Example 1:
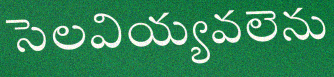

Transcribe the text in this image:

సెలవియ్యవలెను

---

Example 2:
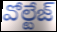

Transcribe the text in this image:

వోల్టేజ్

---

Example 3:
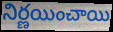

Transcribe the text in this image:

నిర్ణయించాయి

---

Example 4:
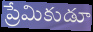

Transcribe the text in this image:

ప్రేమికుడూ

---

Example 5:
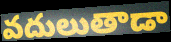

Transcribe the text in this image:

వదులుతాడా